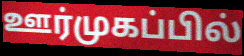
ஊர்முகப்பில்